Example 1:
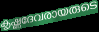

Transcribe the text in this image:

കൃഷ്ണദേവരായരുടെ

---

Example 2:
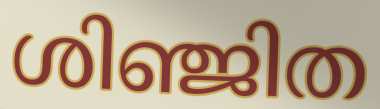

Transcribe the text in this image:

ശിഞ്ജിത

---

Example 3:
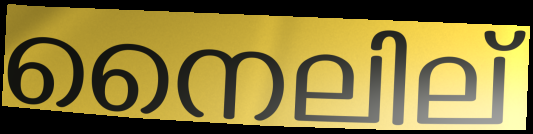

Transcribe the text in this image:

നൈലില്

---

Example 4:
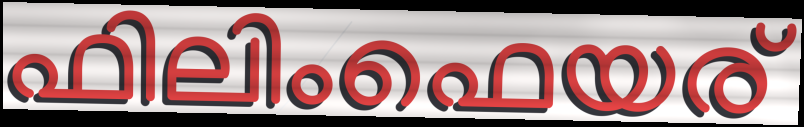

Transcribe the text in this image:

ഫിലിംഫെയര്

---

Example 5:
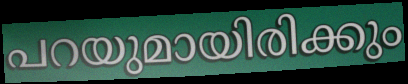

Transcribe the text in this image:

പറയുമായിരിക്കും